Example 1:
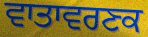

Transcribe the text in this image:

ਵਾਤਾਵਰਣਕ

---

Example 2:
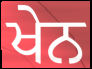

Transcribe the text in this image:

ਖੇਨ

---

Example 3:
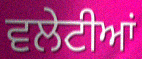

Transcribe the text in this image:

ਵਲੇਟੀਆਂ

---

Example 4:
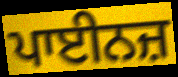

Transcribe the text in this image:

ਪਾਈਨਜ਼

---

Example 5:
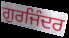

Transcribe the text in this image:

ਗੁਰਜਿੰਦਰ